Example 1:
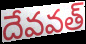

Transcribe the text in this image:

దేవవత్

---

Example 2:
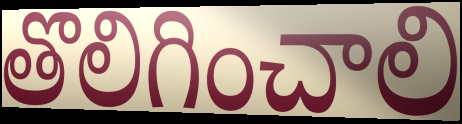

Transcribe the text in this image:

తొలిగించాలి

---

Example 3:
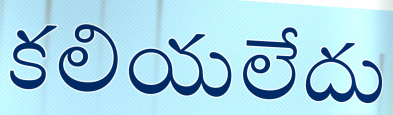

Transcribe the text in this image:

కలియలేదు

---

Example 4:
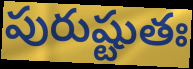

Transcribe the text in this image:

పురుష్టుతః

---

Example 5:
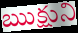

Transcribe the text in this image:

ఋక్షుని